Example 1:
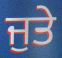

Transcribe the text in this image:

ਜੁਤੇ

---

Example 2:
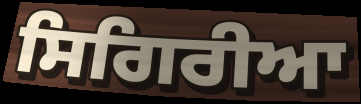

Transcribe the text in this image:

ਸਿਗਿਰੀਆ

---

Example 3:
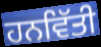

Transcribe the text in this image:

ਹਨਵਿੱਤੀ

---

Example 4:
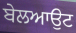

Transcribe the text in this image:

ਬੇਲਆਉਟ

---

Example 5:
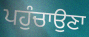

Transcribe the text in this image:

ਪਹੁੰਚਾਉਣਾ